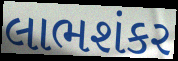
લાભશંકર